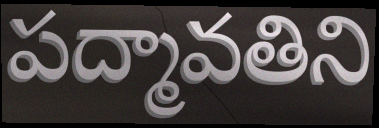
పద్మావతిని